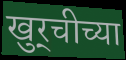
खुर्चीच्या